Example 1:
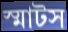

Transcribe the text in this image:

স্মাটস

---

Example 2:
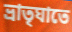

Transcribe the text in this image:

ভ্রাতৃঘাতে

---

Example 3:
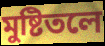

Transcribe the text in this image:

মুষ্টিতলে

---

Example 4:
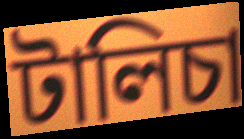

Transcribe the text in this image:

টালিচা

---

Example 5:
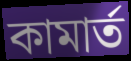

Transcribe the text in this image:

কামার্ত